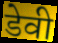
डेवी